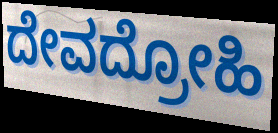
ದೇವದ್ರೋಹಿ